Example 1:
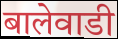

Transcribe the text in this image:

बालेवाडी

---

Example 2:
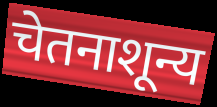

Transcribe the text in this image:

चेतनाशून्य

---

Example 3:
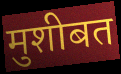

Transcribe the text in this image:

मुशीबत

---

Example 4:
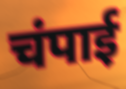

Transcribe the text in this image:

चंपाई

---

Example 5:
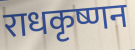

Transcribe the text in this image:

राधकृष्णन